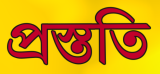
প্রস্ততি